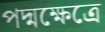
পদ্মক্ষেত্রে